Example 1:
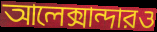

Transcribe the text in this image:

আলেক্সান্দারও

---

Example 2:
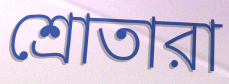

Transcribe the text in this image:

শ্রোতারা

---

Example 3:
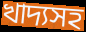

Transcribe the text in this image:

খাদ্যসহ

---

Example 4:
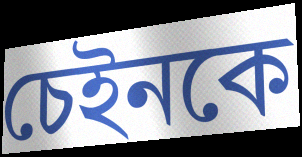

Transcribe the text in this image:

চেইনকে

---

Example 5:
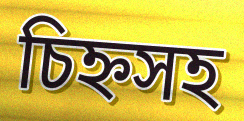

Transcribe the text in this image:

চিহ্নসহ